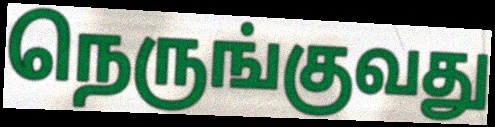
நெருங்குவது